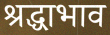
श्रद्धाभाव